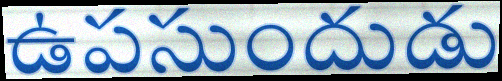
ఉపసుందుడు